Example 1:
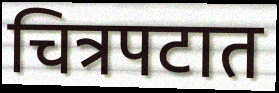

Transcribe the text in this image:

चित्रपटात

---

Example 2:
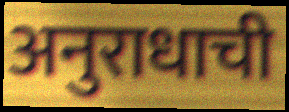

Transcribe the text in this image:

अनुराधाची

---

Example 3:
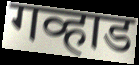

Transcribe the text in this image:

गव्हाड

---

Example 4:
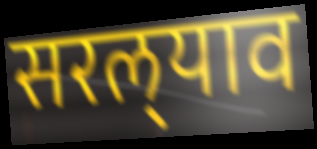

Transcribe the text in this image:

सरल्याव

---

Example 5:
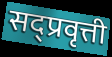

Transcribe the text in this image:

सद्प्रवृत्ती